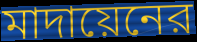
মাদায়েনের